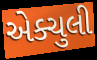
એક્ચુલી